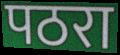
पठरा